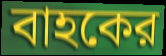
বাহকের